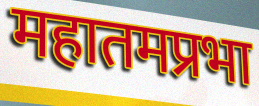
महातमप्रभा